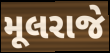
મૂલરાજે